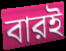
বারই